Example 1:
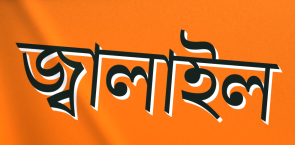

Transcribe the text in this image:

জ্বালাইল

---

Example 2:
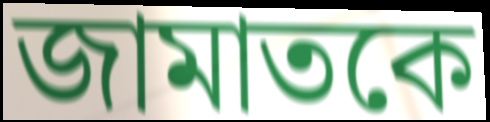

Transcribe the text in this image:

জামাতকে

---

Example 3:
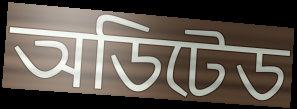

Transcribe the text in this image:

অডিটেড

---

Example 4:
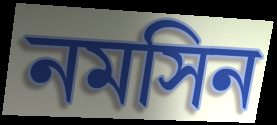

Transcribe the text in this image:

নমসিন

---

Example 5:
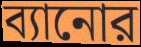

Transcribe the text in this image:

ব্যানোর